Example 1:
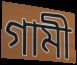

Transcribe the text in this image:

গামী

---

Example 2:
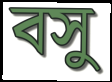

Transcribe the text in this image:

বসু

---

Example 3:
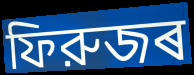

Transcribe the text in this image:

ফিৰুজৰ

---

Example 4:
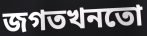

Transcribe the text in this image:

জগতখনতো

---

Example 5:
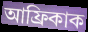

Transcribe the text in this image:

আফ্ৰিকাক